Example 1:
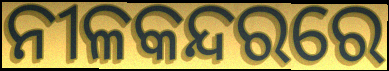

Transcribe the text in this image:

ନୀଳକନ୍ଦରରେ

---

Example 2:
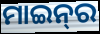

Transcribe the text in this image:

ମାଇନ୍‍ର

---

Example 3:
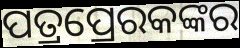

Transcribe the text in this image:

ପତ୍ରପ୍ରେରକଙ୍କର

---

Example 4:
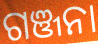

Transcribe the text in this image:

ଗଞ୍ଜନା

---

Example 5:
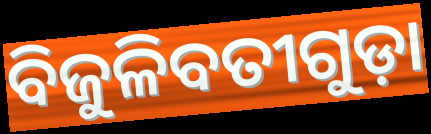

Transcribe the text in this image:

ବିଜୁଳିବତୀଗୁଡ଼ା